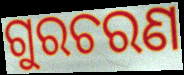
ଗୁରଚରଣ